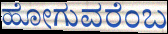
ಹೋಗುವರೆಂಬ